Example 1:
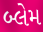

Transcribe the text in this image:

બ્લેમ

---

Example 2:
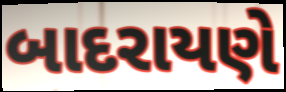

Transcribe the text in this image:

બાદરાયણે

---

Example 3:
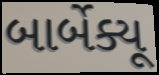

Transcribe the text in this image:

બાર્બેક્યૂ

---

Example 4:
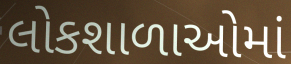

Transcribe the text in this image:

લોકશાળાઓમાં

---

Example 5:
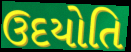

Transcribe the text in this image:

ઉદયોતિ